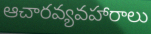
ఆచారవ్యవహారాలు